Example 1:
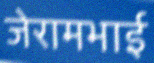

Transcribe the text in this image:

जेरामभाई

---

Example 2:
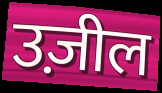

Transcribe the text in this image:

उज़ील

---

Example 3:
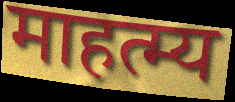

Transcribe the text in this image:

माहत्म्य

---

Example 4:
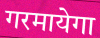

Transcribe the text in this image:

गरमायेगा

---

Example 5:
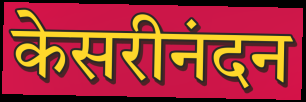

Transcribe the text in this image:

केसरीनंदन